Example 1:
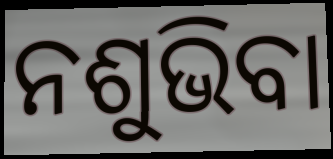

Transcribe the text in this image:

ନଶୁଭିବା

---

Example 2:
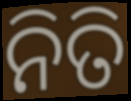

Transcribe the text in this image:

ନିତି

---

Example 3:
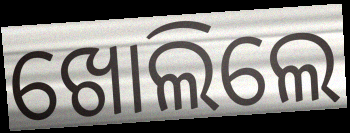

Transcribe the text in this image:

ଖୋଲିଲେ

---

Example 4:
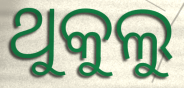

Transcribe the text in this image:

ଥୁକୁଲୁ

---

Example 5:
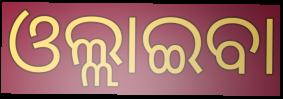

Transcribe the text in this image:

ଓଲ୍ଲାଇବା